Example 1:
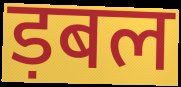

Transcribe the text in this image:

ड़बल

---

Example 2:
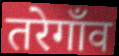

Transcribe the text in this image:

तरेगाँव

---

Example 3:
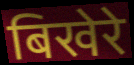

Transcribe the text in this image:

बिखेरे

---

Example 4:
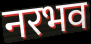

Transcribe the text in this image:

नरभव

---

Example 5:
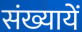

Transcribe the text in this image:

संख्यायें